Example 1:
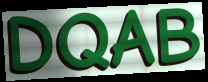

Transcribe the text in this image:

DQAB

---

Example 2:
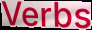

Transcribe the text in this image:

Verbs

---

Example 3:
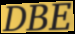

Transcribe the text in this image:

DBE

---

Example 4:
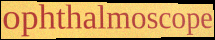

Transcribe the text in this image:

ophthalmoscope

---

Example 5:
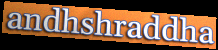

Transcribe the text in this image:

andhshraddha